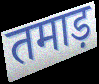
तमाड़